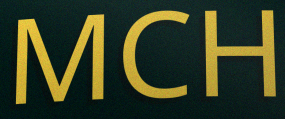
MCH